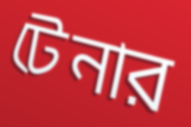
টেনার